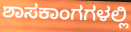
ಶಾಸಕಾಂಗಗಳಲ್ಲಿ